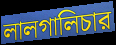
লালগালিচার